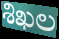
శిఖల